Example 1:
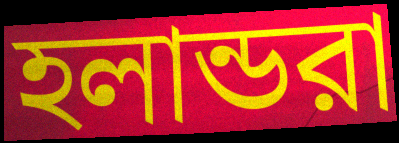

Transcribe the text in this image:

হলান্ডরা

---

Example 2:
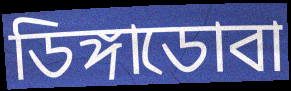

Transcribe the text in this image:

ডিঙ্গাডোবা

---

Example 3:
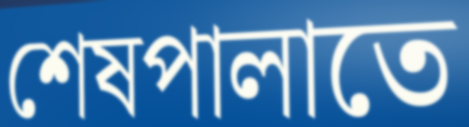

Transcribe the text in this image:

শেষপালাতে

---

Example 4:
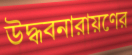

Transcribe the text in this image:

উদ্ধবনারায়ণের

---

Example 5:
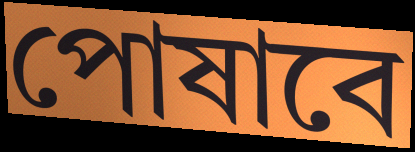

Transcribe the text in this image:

পোষাবে